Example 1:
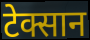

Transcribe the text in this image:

टेक्सान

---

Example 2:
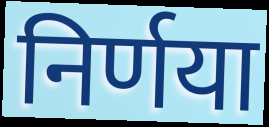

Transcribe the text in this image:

निर्णया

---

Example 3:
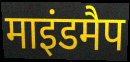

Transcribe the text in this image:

माइंडमैप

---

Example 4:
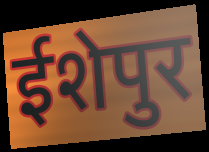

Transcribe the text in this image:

ईशेपुर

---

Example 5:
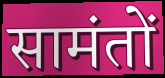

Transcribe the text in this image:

सामंतों